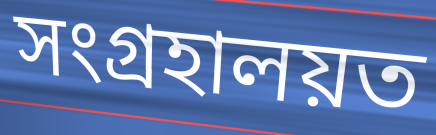
সংগ্ৰহালয়ত